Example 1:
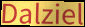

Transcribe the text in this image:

Dalziel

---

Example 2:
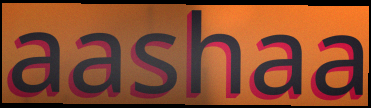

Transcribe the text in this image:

aashaa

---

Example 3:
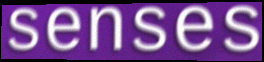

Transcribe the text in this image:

senses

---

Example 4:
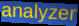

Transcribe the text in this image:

analyzer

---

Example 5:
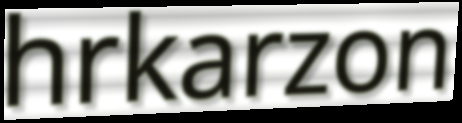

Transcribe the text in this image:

hrkarzon